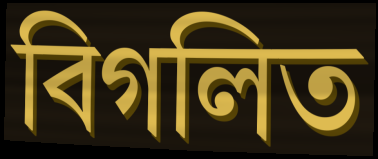
বিগলিত